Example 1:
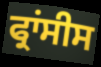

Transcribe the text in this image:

ਫ੍ਰਾਂਸੀਸ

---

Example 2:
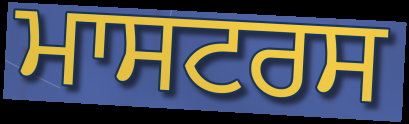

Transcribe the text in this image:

ਮਾਸਟਰਸ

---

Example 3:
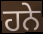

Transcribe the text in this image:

ਹਨੇ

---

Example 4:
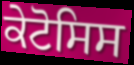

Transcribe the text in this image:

ਕੇਟੋਸਿਸ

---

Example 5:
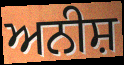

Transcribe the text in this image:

ਅਨੀਸ਼